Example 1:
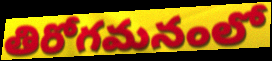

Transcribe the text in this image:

తిరోగమనంలో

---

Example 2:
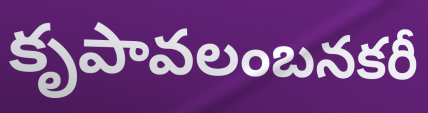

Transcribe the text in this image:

కృపావలంబనకరీ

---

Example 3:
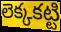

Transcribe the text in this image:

లెక్కకట్టి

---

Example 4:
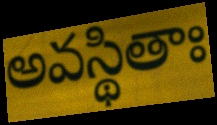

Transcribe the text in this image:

అవస్థితాః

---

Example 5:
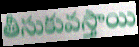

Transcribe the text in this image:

తీసుకువస్తాయి